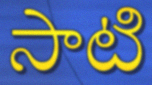
సాటి